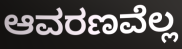
ಆವರಣವೆಲ್ಲ